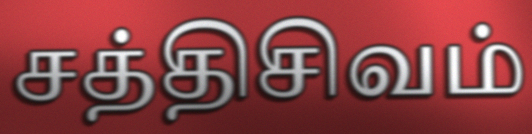
சத்திசிவம்